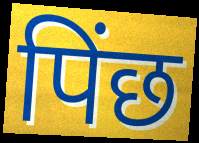
पिंछ